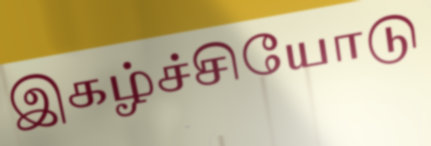
இகழ்ச்சியோடு